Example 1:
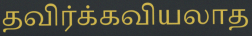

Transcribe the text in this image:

தவிர்க்கவியலாத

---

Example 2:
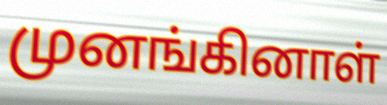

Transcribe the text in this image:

முனங்கினாள்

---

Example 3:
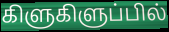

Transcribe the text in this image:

கிளுகிளுப்பில்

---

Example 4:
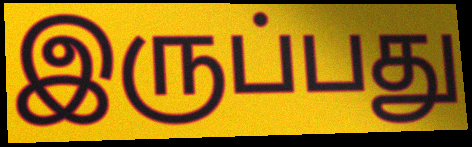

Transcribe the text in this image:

இருப்பது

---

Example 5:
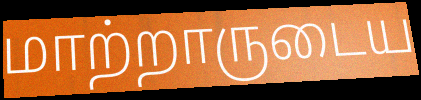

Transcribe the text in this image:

மாற்றாருடைய